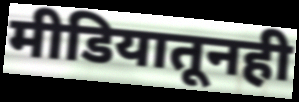
मीडियातूनही